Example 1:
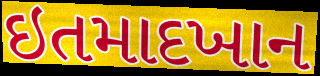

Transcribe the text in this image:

ઇતમાદખાન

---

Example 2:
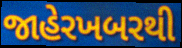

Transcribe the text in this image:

જાહેરખબરથી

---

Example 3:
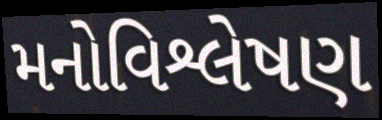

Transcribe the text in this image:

મનોવિશ્લેષણ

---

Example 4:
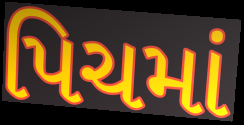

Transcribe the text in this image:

પિચમાં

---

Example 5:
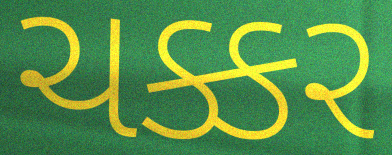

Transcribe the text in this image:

ચક્કર